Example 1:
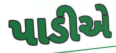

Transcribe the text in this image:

પાડીએ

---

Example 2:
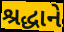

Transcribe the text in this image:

શ્રદ્ધાને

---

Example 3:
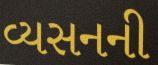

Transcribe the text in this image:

વ્યસનની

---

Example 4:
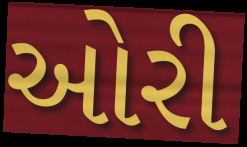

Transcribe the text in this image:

ઓરી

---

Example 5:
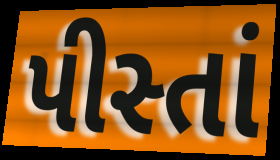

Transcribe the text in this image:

પીસ્તાં